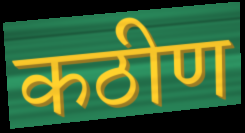
कठीण